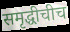
समृद्धीचीच